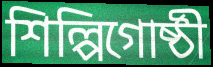
শিল্পিগোষ্ঠী